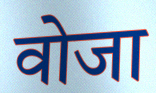
वोजा